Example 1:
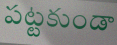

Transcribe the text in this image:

పట్టకుండా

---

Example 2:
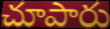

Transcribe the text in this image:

చూపారు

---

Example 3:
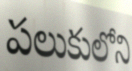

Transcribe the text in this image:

పలుకులోని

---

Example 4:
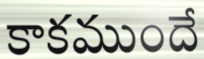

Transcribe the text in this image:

కాకముందే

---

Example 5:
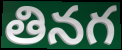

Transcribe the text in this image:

తినగ